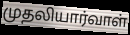
முதலியார்வாள்